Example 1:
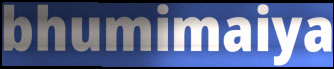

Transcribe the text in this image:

bhumimaiya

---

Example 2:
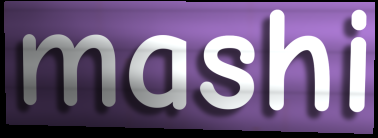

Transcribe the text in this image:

mashi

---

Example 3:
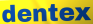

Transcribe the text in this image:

dentex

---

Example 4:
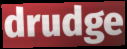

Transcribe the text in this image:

drudge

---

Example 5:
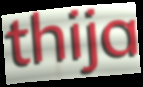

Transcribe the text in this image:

thija